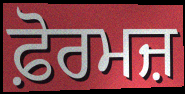
ਫ਼ੋਰਮਜ਼